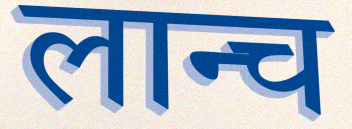
लान्‍च